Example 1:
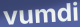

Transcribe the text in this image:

vumdi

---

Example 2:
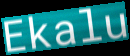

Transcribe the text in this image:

Ekalu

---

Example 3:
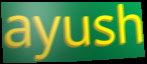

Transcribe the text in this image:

ayush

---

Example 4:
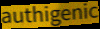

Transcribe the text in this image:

authigenic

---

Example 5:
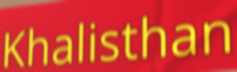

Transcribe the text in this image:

Khalisthan